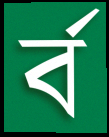
র্ব